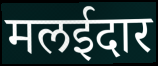
मलईदार